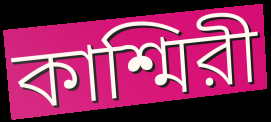
কাশ্মিরী